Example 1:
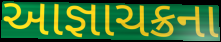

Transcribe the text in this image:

આજ્ઞાચક્રના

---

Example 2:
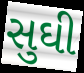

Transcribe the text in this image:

સુઘી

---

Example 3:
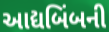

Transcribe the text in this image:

આદ્યબિંબની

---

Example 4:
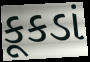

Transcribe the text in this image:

કૂકડાં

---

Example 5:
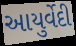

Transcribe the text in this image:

આયુર્વેદી